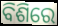
ବିଶିରେ